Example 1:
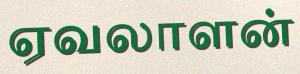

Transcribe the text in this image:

ஏவலாளன்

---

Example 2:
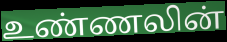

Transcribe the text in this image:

உண்ணலின்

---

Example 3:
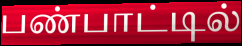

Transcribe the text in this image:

பண்பாட்டில்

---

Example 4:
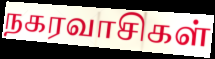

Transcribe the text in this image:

நகரவாசிகள்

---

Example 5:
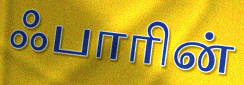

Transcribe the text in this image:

ஃபாரின்